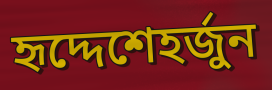
হৃদ্দেশেহর্জুন